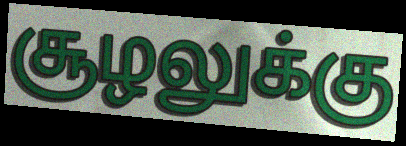
சூழலுக்கு